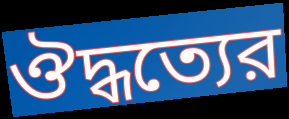
ঔদ্ধত্যের